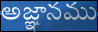
అజ్ఞానము